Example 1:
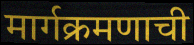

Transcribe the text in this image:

मार्गक्रमणाची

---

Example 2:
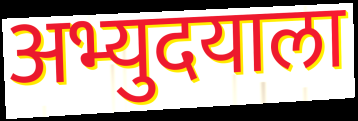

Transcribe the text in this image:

अभ्युदयाला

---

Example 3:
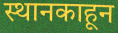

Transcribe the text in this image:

स्थानकाहून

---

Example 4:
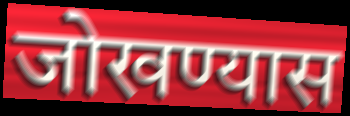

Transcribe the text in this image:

जोखण्यास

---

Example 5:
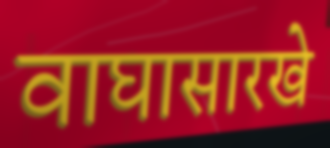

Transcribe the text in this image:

वाघासारखे